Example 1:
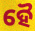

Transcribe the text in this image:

ହୈ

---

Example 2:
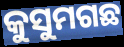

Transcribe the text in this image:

କୁସୁମଗଛ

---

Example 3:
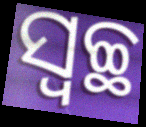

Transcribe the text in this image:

ସ୍ୱଚ୍ଛ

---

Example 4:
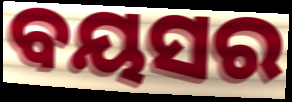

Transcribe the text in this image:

ବୟସର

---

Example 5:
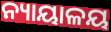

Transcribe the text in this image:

ନ୍ୟାୟାଳୟ